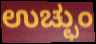
ಉಚ್ಛುಂ